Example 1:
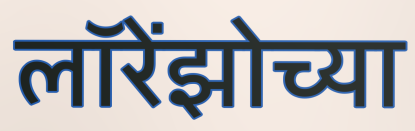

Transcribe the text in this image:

लॉरेंझोच्या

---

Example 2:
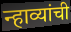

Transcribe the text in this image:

न्हाव्यांची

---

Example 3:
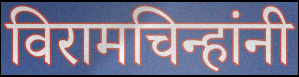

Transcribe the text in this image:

विरामचिन्हांनी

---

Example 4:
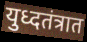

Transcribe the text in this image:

युध्दतंत्रात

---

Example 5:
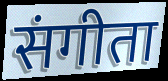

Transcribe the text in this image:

संगीता